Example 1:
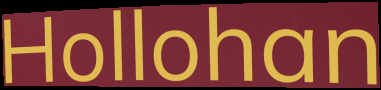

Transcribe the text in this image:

Hollohan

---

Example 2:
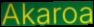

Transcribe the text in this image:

Akaroa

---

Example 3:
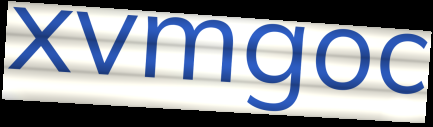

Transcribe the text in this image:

xvmgoc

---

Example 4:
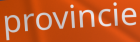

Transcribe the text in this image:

provincie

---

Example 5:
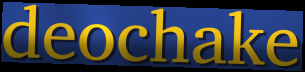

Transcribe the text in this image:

deochake